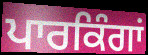
ਪਾਰਕਿੰਗਾਂ